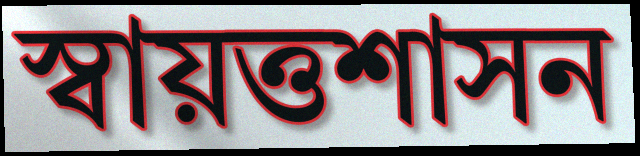
স্বায়ত্তশাসন